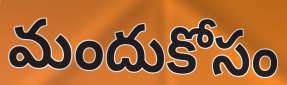
మందుకోసం